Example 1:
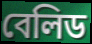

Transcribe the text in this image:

বেলিড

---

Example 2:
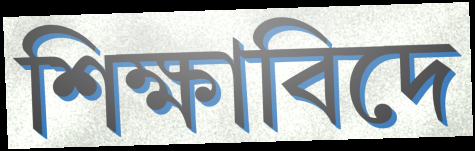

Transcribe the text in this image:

শিক্ষাবিদে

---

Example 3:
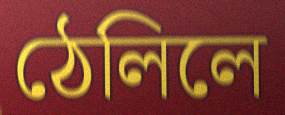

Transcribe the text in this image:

ঠেলিলে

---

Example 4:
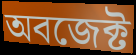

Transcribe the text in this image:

অবজেক্ট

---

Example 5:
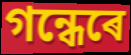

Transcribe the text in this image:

গন্ধেৰে